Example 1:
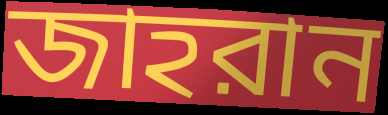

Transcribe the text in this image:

জাহরান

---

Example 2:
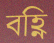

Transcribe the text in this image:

বহ্ণি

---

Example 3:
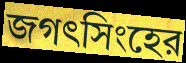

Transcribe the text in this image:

জগৎসিংহের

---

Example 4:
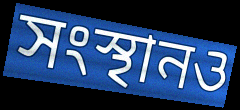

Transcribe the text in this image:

সংস্থানও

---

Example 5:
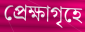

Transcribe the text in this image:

প্রেক্ষাগৃহে